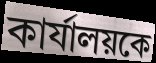
কার্যালয়কে